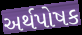
અર્થપોષક